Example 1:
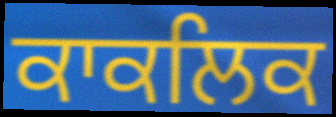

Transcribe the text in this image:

ਕਾਕਲਿਕ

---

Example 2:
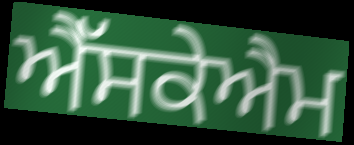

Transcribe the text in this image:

ਐੱਸਕੇਐਮ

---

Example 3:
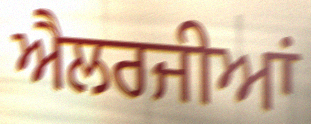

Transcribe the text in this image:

ਐਲਰਜੀਆਂ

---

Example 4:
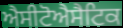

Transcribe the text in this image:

ਐਸੀਟੋਐਸੈਟਿਕ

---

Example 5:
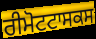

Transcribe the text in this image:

ਰੀਮੋਟਟਾਸਕਸ